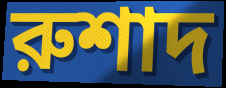
রুশাদ